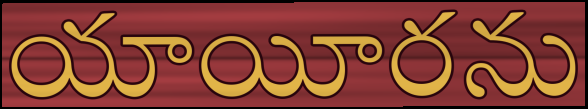
యాయీరను